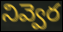
నివ్వెర